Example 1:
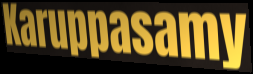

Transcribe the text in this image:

Karuppasamy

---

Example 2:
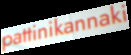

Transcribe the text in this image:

pattinikannaki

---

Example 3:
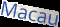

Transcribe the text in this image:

Macau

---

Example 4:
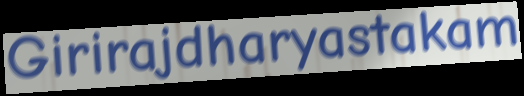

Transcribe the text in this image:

Girirajdharyastakam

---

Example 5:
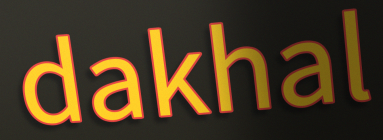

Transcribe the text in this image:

dakhal